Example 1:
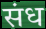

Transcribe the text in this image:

संध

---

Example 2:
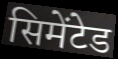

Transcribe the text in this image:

सिमेंटेड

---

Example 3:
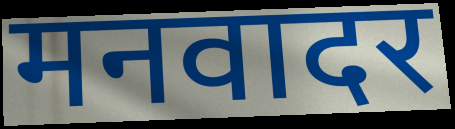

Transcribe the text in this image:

मनवादर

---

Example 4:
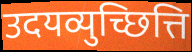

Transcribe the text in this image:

उदयव्युच्छित्ति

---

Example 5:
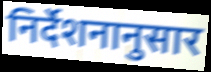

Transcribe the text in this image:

निर्देशनानुसार